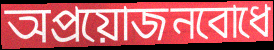
অপ্রয়োজনবোধে